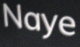
Naye